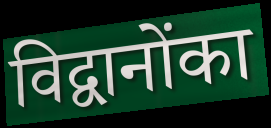
विद्वानोंका